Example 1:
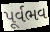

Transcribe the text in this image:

પૂર્વભવ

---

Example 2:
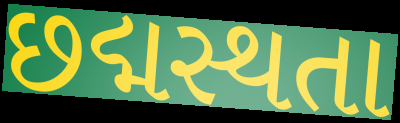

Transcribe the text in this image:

છદ્મસ્થતા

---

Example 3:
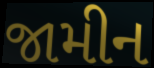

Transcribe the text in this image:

જામીન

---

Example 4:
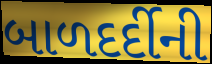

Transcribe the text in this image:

બાળદર્દીની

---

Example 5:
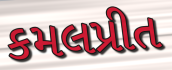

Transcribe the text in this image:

કમલપ્રીત